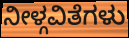
ನೀಳ್ಗವಿತೆಗಳು